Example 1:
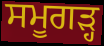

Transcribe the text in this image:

ਸਮੂਗੜ੍ਹ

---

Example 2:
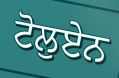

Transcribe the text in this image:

ਟੋਲੁਏਨ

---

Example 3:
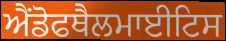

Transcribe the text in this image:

ਐਂਡੋਫਥੈਲਮਾਈਟਿਸ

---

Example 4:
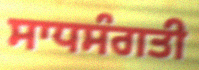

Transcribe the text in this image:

ਸਾਧਸੰਗਤੀ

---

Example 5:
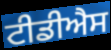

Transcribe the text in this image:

ਟੀਡੀਐਸ